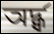
অর্দ্ধ্ব